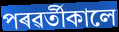
পৰৱৰ্তীকালে